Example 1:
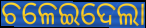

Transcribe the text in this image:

ଚଳେଇଦେଲା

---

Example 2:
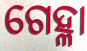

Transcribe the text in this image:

ଗେହ୍ଳା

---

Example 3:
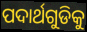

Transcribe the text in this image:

ପଦାର୍ଥଗୁଡିକୁ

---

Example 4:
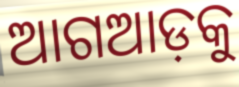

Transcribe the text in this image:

ଆଗଆଡ଼କୁ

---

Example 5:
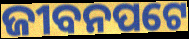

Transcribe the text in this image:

ଜୀବନପଟେ